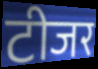
टीजर